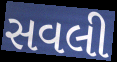
સવલી